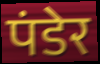
पंडेर